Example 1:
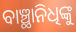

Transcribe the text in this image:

ବାଞ୍ଛାନିଧିଙ୍କୁ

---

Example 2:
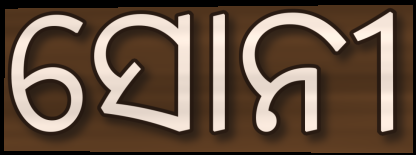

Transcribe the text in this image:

ସୋନୀ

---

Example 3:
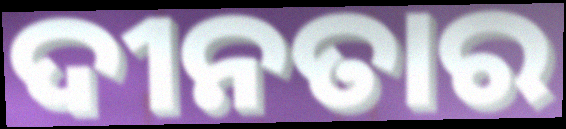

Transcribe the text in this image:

ଦୀନତାର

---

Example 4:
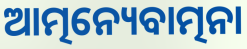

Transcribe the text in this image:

ଆତ୍ମନ୍ୟେବାତ୍ମନା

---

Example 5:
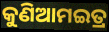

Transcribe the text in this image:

କୁଣିଆମଇତ୍ର